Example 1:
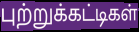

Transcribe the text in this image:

புற்றுக்கட்டிகள்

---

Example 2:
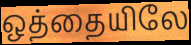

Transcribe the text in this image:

ஒத்தையிலே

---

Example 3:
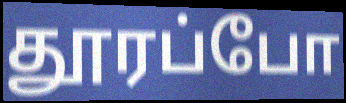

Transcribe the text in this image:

தூரப்போ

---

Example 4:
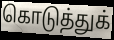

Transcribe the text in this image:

கொடுத்துக்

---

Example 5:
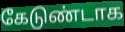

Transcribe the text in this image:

கேடுண்டாக